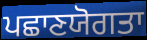
ਪਛਾਣਯੋਗਤਾ